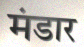
मंडार